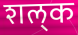
शल्क